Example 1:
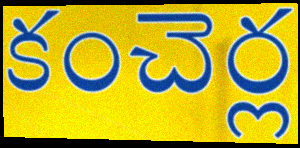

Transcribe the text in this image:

కంచెర్ల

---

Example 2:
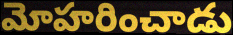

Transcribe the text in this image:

మోహరించాడు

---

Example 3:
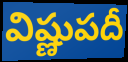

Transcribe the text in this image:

విష్ణుపదీ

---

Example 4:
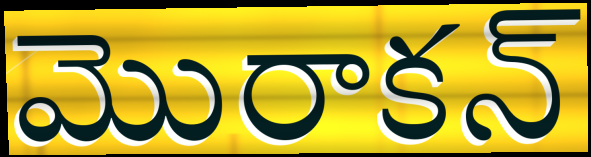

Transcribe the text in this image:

మొరాకన్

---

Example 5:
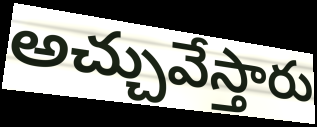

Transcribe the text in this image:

అచ్చువేస్తారు